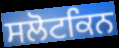
ਸਲੋਟਕਿਨ